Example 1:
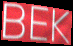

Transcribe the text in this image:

BEK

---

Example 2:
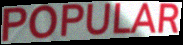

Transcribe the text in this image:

POPULAR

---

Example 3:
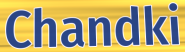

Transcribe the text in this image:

Chandki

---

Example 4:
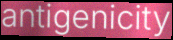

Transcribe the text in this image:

antigenicity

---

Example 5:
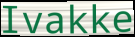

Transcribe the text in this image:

Ivakke